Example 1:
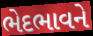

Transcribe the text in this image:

ભેદભાવને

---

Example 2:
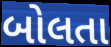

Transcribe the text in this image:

બોલતા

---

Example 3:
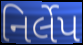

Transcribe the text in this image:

નિર્લેપ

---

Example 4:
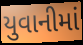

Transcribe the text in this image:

યુવાનીમાં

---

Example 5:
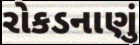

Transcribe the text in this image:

રોકડનાણું